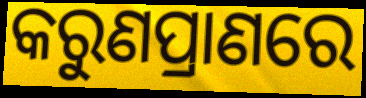
କରୁଣପ୍ରାଣରେ